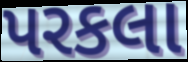
પરકલા